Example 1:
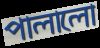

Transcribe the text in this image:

পালালো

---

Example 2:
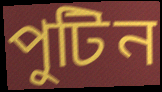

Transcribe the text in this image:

পুটিন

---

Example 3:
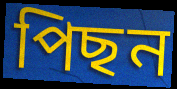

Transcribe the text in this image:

পিছন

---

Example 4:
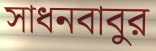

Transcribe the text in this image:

সাধনবাবুর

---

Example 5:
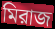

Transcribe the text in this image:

মিরাজ